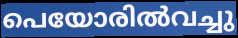
പെയോരിൽവച്ചു